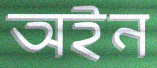
অইন